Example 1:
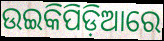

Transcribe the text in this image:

ଉଇକିପିଡ଼ିଆରେ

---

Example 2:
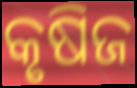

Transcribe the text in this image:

କୃଷିଜ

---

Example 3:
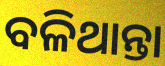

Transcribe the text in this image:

ବଳିଥାନ୍ତା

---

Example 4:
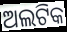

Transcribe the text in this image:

ଅଲଟିକ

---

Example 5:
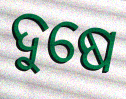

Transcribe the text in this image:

ଦୁଷେ